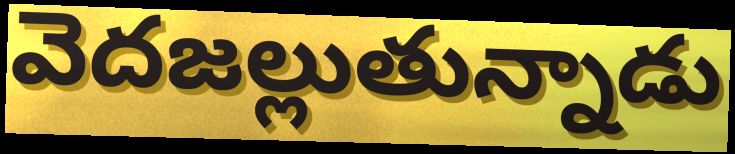
వెదజల్లుతున్నాడు